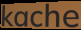
kache